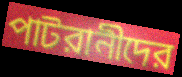
পাটরানীদের